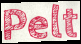
Pelt